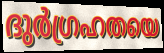
ദുർഗ്രഹതയെ